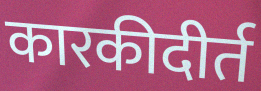
कारकीदीर्त